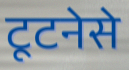
टूटनेसे